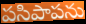
పసిపాపను